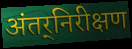
अंतर्निरीक्षण